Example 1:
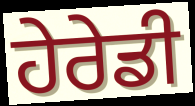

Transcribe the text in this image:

ਹੇਰੇਡੀ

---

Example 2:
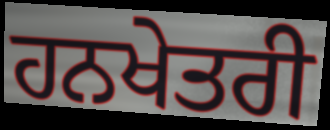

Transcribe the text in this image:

ਹਨਖੇਤਰੀ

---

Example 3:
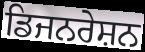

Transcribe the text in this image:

ਡਿਜਨਰੇਸ਼ਨ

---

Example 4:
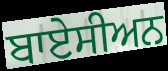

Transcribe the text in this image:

ਬਾਏਸੀਅਨ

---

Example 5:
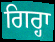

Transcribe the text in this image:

ਗਿਰ੍ਹਾ